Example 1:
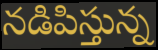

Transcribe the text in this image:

నడిపిస్తున్న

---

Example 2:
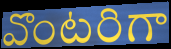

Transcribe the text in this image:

వొంటరిగా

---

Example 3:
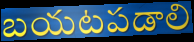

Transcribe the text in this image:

బయటపడాలి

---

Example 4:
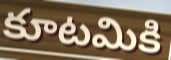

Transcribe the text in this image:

కూటమికి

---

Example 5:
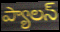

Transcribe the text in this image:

ప్యాలస్